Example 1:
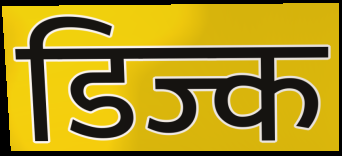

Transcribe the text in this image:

डिज्क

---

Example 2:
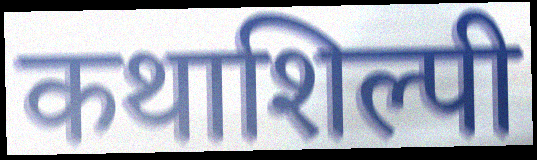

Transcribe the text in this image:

कथाशिल्पी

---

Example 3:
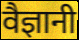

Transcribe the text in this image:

वैज्ञानी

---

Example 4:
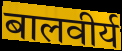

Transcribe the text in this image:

बालवीर्य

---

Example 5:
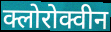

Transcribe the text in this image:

क्लोरोक्वीन